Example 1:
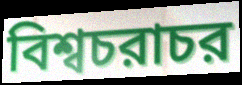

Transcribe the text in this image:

বিশ্বচরাচর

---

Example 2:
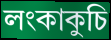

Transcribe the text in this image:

লংকাকুচি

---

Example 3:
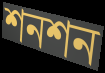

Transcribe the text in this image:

শনশন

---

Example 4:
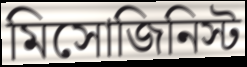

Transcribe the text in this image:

মিসোজিনিস্ট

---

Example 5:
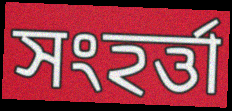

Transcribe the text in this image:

সংহর্ত্তা